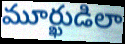
మూర్ఖుడిలా